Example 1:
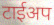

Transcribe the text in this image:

टाईअप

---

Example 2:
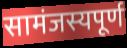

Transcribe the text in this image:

सामंजस्यपूर्ण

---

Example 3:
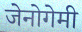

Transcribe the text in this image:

जेनोगेमी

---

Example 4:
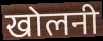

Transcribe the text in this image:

खोलनी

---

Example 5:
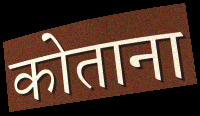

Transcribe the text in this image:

कोताना